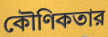
কৌণিকতার